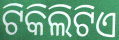
ଟିକିଲିଟିଏ